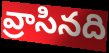
వ్రాసినది